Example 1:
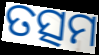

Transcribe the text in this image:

ତତ୍ସମ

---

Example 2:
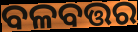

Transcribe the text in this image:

ବଳବତ୍ତର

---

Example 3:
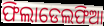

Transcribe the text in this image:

ଫିଲାଡେଲଫିଆ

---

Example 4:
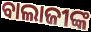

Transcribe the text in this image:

ବାଲାଜୀଙ୍କ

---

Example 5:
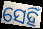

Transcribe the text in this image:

ସେହିଁ